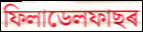
ফিলাডেলফাছৰ